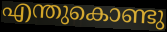
എന്തുകൊണ്ടു